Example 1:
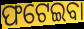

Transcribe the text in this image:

ଫଟେଇବା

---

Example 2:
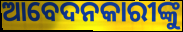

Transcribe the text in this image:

ଆବେଦନକାରୀଙ୍କୁ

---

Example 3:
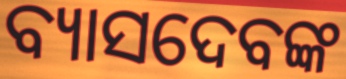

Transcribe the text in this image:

ବ୍ୟାସଦେବଙ୍କ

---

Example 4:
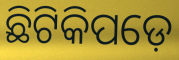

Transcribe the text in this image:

ଛିଟିକିପଡ଼େ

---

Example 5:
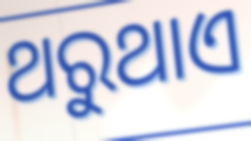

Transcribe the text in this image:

ଥରୁଥାଏ